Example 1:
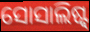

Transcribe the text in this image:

ସୋସାଲିଷ୍ଟ୍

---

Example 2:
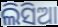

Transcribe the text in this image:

ଲିସିଆ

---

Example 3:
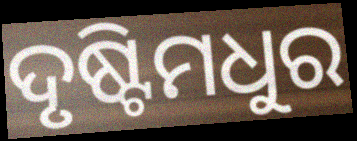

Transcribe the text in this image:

ଦୃଷ୍ଟିମଧୁର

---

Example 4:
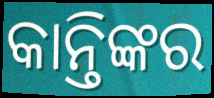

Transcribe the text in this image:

କାନ୍ତିଙ୍କର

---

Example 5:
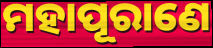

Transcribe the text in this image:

ମହାପୂରାଣେ